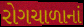
રોગચાળાનાં